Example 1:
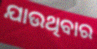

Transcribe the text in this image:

ଯାଉଥିବାର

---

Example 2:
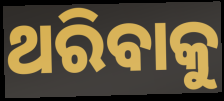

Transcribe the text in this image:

ଥରିବାକୁ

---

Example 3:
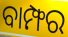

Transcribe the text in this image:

ବାମ୍ଫର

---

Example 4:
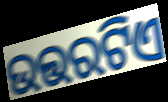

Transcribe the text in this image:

ଉତ୍ତରଟିଏ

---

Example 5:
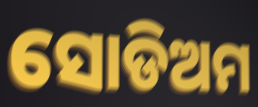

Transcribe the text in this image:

ସୋଡିଅମ